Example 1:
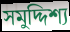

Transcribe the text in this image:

সমুদ্দিশ্য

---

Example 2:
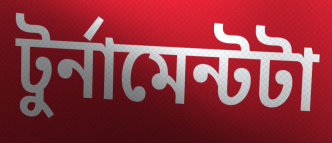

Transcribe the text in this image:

টুর্নামেন্টটা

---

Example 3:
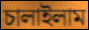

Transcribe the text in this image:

চালাইলাম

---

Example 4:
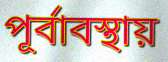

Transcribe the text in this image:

পূর্বাবস্থায়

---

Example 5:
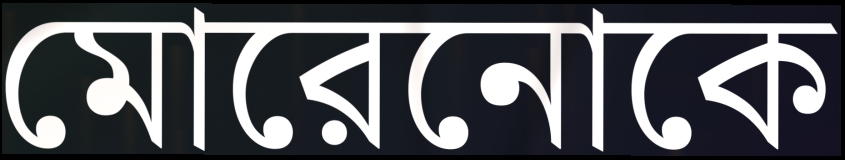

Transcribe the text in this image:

মোরেনোকে